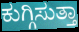
ಕುಗ್ಗಿಸುತ್ತಾ